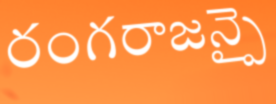
రంగరాజన్పై